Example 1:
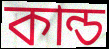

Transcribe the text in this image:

কান্ড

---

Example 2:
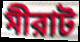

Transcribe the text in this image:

মীরাট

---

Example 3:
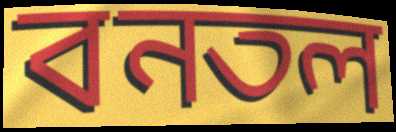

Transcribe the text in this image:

বনতল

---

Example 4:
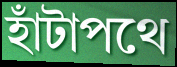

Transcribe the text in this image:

হাঁটাপথে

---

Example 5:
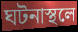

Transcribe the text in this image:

ঘটনাস্থলে